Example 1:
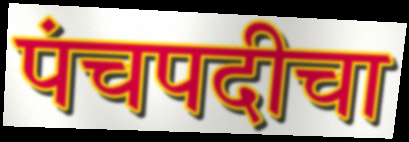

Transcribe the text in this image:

पंचपदीचा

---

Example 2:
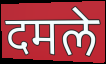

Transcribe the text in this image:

दमले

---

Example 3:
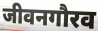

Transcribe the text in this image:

जीवनगौरव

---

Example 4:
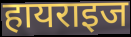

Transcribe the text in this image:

हायराइज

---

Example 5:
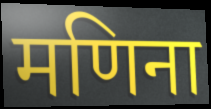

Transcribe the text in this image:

मणिना